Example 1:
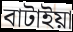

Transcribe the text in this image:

বাটাইয়া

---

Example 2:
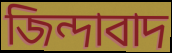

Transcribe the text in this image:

জিন্দাবাদ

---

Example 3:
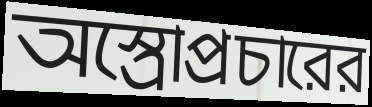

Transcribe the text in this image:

অস্ত্রোপ্রচারের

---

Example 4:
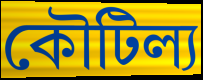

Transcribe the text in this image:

কৌটিল্য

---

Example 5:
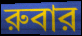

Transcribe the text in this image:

রুবার